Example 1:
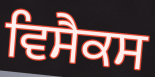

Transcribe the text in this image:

ਵਿਸੈਕਸ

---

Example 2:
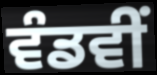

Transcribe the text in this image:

ਵੰਡਵੀਂ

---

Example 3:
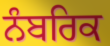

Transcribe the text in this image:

ਨੰਬਰਿਕ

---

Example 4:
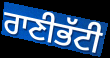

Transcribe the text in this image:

ਰਾਣੀਭੱਟੀ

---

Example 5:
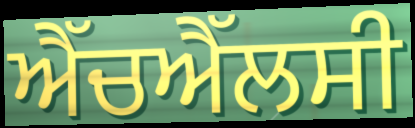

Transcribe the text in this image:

ਐੱਚਐੱਲਸੀ